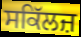
ਸਕਿੱਲਜ਼